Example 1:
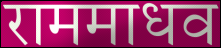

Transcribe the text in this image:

राममाधव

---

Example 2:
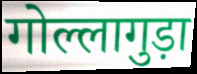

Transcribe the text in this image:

गोल्लागुड़ा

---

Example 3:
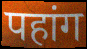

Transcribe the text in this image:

पहांग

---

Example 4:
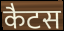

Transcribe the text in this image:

कैटस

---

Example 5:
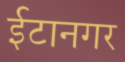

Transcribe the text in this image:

ईटानगर